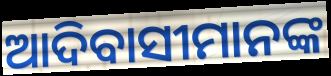
ଆଦିବାସୀମାନଙ୍କ